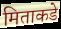
मिताकडे